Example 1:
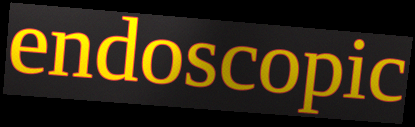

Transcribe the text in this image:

endoscopic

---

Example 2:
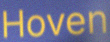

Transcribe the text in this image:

Hoven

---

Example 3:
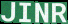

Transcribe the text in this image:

JINR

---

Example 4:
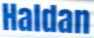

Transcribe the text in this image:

Haldan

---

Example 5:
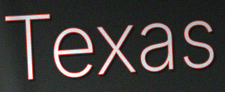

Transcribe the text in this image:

Texas